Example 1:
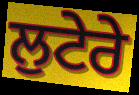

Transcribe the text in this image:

ਲੁਟੇਰੇ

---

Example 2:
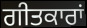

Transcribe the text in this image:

ਗੀਤਕਾਰਾਂ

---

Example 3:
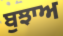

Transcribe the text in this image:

ਬੁਝਾਅ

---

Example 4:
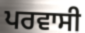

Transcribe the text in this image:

ਪਰਵਾਸੀ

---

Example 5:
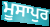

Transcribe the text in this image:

ਮੂਸਾਪੁਰ